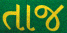
તાજ